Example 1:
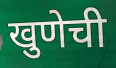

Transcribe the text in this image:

खुणेची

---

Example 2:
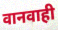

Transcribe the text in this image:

वानवाही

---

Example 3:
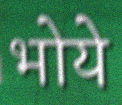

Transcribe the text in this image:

भोये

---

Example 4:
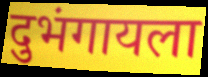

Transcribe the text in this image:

दुभंगायला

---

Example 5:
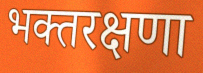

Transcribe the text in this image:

भक्तरक्षणा